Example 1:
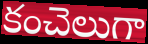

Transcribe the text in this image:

కంచెలుగా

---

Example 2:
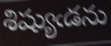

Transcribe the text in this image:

శిష్యుఁడను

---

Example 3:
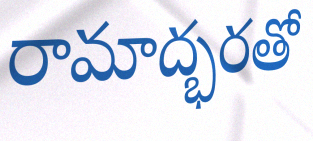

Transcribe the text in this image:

రామాద్భరతో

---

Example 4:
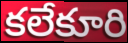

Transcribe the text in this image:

కలేకూరి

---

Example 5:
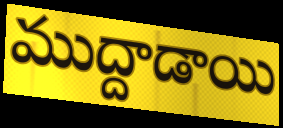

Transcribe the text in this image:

ముద్దాడాయి